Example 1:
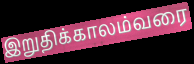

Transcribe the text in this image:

இறுதிக்காலம்வரை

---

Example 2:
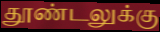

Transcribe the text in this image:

தூண்டலுக்கு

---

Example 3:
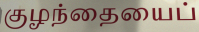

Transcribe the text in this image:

குழந்தையைப்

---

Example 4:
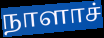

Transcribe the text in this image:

நாளாச்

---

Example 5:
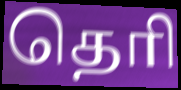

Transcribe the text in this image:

தெரி